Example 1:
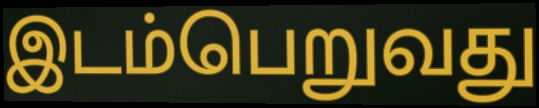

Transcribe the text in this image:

இடம்பெறுவது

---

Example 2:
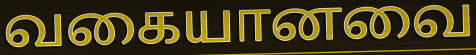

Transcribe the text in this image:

வகையானவை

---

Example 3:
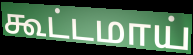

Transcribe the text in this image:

கூட்டமாய்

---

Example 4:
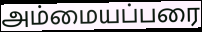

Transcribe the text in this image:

அம்மையப்பரை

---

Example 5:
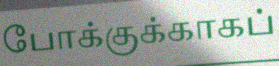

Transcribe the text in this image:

போக்குக்காகப்